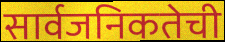
सार्वजनिकतेची